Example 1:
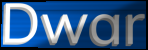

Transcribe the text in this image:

Dwar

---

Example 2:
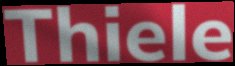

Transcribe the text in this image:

Thiele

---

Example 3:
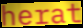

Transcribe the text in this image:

herat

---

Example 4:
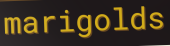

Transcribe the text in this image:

marigolds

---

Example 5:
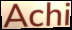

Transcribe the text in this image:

Achi